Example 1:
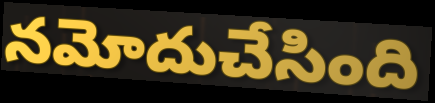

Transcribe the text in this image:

నమోదుచేసింది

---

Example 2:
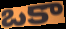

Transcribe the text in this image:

ఒకా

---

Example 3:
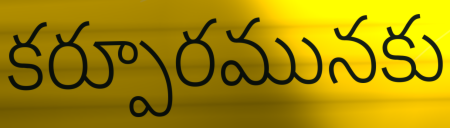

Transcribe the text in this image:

కర్పూరమునకు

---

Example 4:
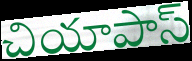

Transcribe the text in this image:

చియాపాస్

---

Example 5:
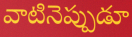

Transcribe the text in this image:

వాటినెప్పుడూ